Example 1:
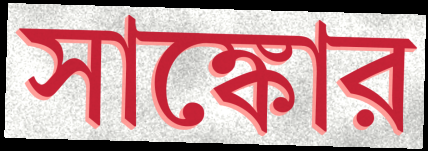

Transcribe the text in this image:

সাঙ্কোর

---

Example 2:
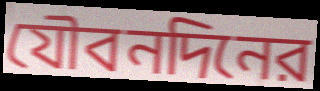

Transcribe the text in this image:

যৌবনদিনের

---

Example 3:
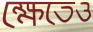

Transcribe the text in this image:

ক্ষেতেও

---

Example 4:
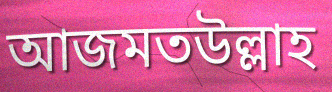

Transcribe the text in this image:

আজমতউল্লাহ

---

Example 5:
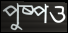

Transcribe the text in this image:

পুষ্পও